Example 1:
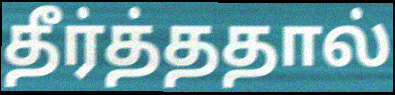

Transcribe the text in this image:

தீர்த்ததால்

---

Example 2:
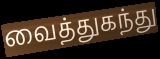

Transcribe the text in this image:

வைத்துகந்து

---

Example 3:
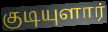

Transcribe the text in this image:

குடியுளார்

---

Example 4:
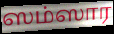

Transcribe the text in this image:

ஸம்ஸார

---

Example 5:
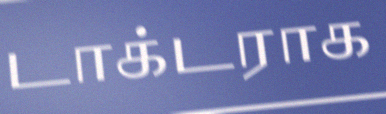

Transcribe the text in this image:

டாக்டராக